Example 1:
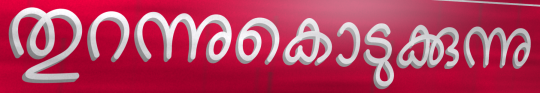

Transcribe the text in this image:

തുറന്നുകൊടുക്കുന്നു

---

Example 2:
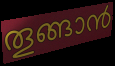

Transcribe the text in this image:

തൂങ്ങാൻ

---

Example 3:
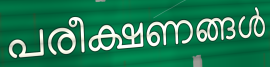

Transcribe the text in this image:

പരീക്ഷണങ്ങൾ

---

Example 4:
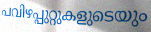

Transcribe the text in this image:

പവിഴപ്പുറ്റുകളുടെയും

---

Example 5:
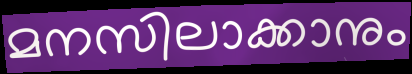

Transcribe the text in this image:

മനസിലാക്കാനും